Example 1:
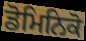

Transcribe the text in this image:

ਡੋਮਿਨਿਕੋ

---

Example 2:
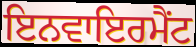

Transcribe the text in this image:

ਇਨਵਾਇਰਮੈਂਟ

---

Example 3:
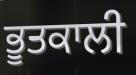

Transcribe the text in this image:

ਭੂਤਕਾਲੀ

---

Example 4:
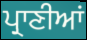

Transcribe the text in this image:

ਪ੍ਰਾਣੀਆਂ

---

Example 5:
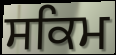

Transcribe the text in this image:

ਸਕਿਮ